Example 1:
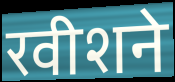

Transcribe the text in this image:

रवीशने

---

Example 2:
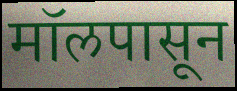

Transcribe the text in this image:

मॉलपासून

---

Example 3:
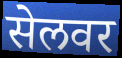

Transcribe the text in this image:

सेलवर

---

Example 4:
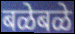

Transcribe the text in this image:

बळेबळे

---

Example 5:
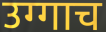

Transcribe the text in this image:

उग्गाच